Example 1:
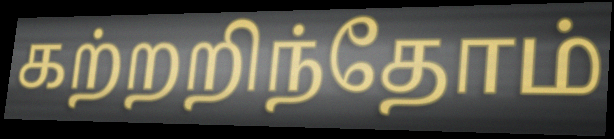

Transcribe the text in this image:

கற்றறிந்தோம்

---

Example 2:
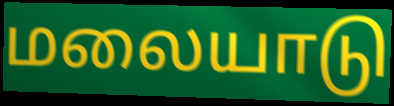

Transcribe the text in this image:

மலையாடு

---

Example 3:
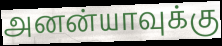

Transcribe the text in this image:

அனன்யாவுக்கு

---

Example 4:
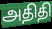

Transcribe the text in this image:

அதிதி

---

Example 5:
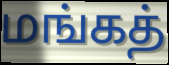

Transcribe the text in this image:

மங்கத்